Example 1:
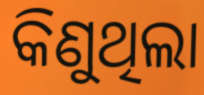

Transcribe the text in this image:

କିଣୁଥିଲା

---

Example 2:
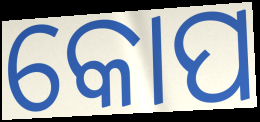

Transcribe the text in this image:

କୋପ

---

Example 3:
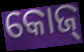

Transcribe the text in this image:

କୋଜ୍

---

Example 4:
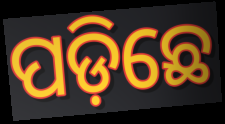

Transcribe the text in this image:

ପଡ଼ିଛେ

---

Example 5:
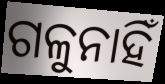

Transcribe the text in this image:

ଗଳୁନାହିଁ